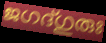
ജഗദ്ഗുരുഃ